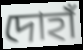
দোহাঁ